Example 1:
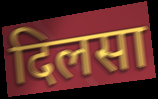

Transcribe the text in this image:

दिलसा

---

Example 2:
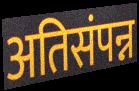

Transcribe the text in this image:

अतिसंपन्न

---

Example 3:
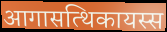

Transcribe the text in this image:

आगासत्थिकायस्स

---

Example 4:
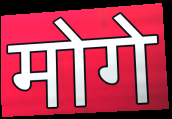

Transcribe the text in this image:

मोगे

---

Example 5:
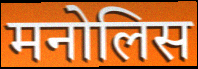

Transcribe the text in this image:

मनोलिस